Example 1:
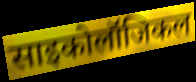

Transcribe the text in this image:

साइकोलॉजिकल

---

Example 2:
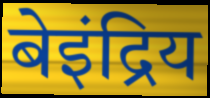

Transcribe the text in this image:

बेइंद्रिय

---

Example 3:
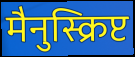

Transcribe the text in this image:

मैनुस्क्रिप्ट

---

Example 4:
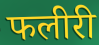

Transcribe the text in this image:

फलीरी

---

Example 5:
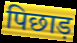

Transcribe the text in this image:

पिछाड़